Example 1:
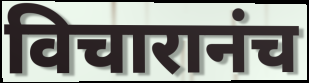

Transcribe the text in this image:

विचारानंच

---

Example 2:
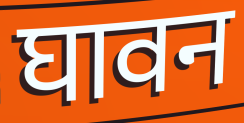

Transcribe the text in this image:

घावन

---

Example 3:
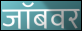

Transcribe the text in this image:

जॉबवर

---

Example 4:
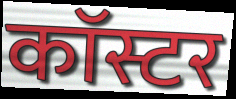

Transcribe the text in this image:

कॉस्टर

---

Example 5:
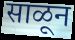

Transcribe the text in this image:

साळून